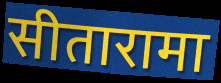
सीतारामा